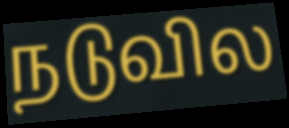
நடுவில